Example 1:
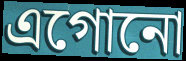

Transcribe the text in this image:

এগোনো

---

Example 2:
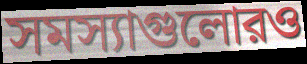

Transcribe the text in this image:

সমস্যাগুলোরও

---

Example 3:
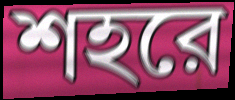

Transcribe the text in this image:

শহরে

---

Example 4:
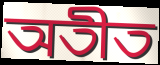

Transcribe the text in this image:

অতীত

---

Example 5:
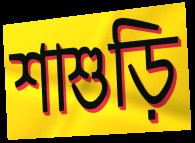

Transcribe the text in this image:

শাশুড়ি